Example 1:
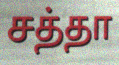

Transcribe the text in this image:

சத்தா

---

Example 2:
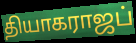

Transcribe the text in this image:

தியாகராஜப்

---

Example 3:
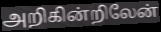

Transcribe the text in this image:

அறிகின்றிலேன்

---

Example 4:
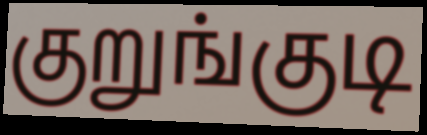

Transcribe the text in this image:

குறுங்குடி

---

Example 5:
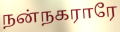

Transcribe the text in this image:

நன்நகராரே